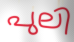
പുലി